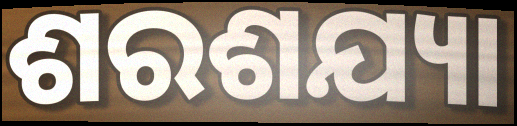
ଶରଶଯ୍ୟା